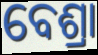
ବେଶ୍ରା